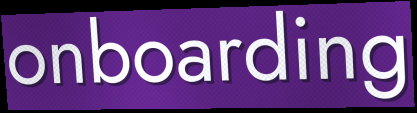
onboarding